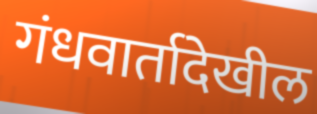
गंधवार्तादेखील